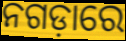
ନଗଡ଼ାରେ